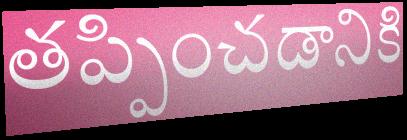
తప్పించడానికి